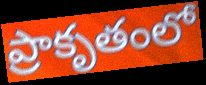
ప్రాకృతంలో